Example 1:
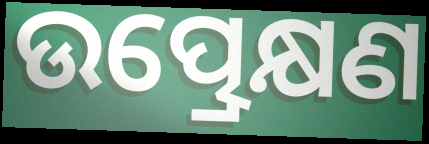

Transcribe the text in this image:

ଉତ୍ପ୍ରେକ୍ଷଣ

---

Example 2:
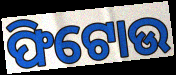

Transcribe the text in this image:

ଫିଟୋଉ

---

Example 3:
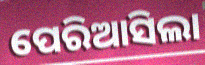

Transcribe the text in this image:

ପେରିଆସିଲା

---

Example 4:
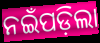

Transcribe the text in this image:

ନଇଁପଡ଼ିଲା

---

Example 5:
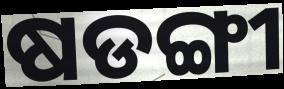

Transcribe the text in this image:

ଷଡଙ୍ଗୀ